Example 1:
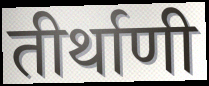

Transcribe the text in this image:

तीर्थाणी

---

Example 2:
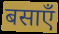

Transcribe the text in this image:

बसाएँ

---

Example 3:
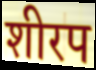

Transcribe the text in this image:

शीरप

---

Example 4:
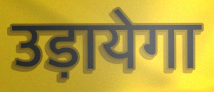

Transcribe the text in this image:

उड़ायेगा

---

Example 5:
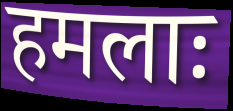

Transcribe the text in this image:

हमलाः